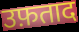
उफ़ताद